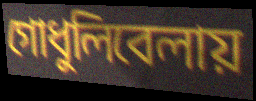
গোধুলিবেলায়